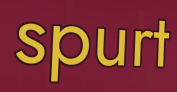
spurt